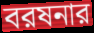
বরষনার